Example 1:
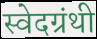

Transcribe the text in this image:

स्वेदग्रंथी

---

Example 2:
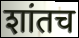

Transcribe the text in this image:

शांतच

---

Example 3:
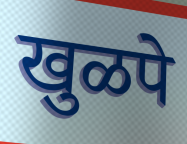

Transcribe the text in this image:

खुळपे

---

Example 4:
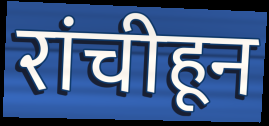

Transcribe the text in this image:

रांचीहून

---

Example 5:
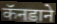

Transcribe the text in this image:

कॅनडाने